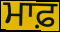
ਮਾਫ਼